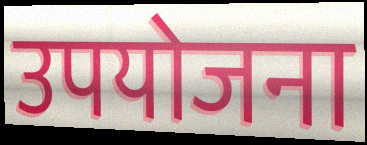
उपयोजना